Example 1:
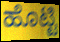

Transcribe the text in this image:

ಹೊಟ್ಟಿ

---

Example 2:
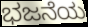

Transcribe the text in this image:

ಭಜನೆಯ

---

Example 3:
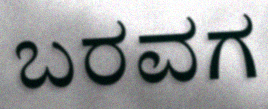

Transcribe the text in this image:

ಬರವಗ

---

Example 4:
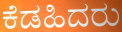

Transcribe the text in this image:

ಕೆಡಹಿದರು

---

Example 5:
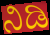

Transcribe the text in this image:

ನಿಡಿ